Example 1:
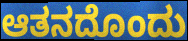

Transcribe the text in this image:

ಆತನದೊಂದು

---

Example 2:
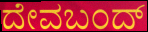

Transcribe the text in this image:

ದೇವಬಂದ್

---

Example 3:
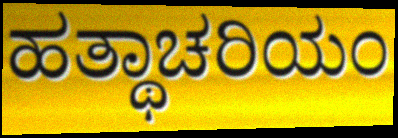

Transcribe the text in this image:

ಹತ್ಥಾಚರಿಯಂ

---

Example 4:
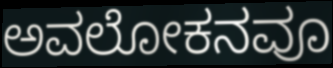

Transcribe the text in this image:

ಅವಲೋಕನವೂ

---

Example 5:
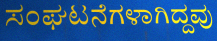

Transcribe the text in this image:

ಸಂಘಟನೆಗಳಾಗಿದ್ದವು